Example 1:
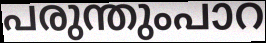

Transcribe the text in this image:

പരുന്തുംപാറ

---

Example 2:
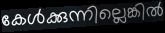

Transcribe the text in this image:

കേൾക്കുന്നില്ലെങ്കിൽ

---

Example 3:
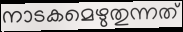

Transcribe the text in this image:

നാടകമെഴുതുന്നത്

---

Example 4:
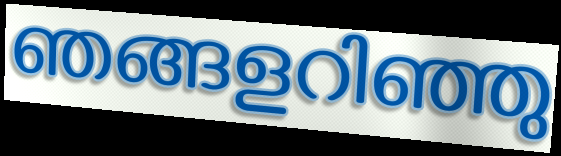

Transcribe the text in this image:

ഞങ്ങളറിഞ്ഞു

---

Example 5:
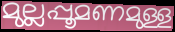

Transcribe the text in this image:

മുല്ലപ്പൂമണമുള്ള